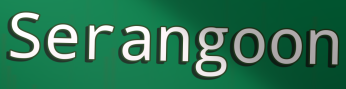
Serangoon